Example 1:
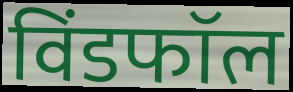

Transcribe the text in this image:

विंडफॉल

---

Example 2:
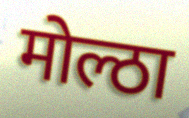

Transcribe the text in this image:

मोल्ठा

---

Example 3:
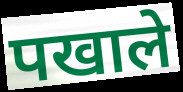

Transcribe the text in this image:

पखाले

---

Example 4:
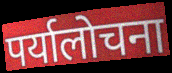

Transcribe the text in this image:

पर्यालोचना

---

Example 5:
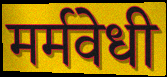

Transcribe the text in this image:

मर्मवेधी